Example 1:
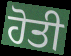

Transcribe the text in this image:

ਹੋਤੀ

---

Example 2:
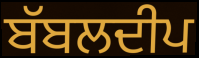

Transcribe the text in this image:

ਬੱਬਲਦੀਪ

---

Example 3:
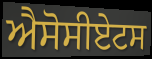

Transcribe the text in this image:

ਐਸੋਸੀਏਟਸ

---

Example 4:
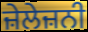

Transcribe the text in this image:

ਜ਼ੇਲੇਜ਼ਨੀ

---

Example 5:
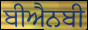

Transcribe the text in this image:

ਬੀਐਨਬੀ